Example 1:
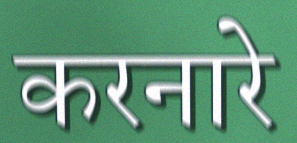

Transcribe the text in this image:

करनारे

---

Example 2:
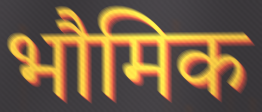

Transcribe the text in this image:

भौमिक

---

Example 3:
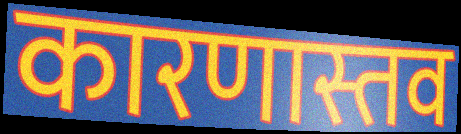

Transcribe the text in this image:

कारणास्तव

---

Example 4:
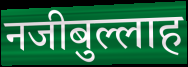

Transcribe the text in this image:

नजीबुल्लाह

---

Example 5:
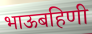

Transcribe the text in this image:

भाऊबहिणी